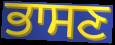
ਭਾਸਣ